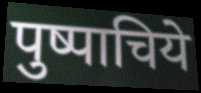
पुष्पाचिये